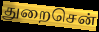
துறைசென்